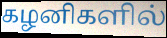
கழனிகளில்